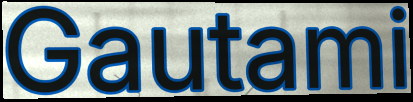
Gautami